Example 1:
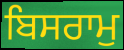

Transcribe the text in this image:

ਬਿਸਰਾਮੁ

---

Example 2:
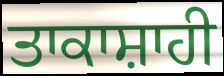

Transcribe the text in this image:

ਤਾਕਾਸ਼ਾਹੀ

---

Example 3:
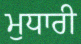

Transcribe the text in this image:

ਮੁਧਾਰੀ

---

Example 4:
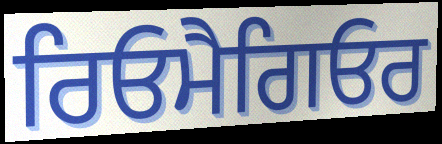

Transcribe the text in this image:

ਰਿਓਮੈਗਿਓਰ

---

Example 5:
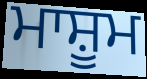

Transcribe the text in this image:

ਮਾਸ਼ੂਮ